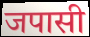
जपासी